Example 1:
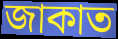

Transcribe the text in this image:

জাকাত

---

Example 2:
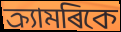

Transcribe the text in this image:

ক্ৰ্যামৰিকে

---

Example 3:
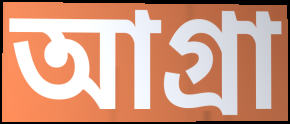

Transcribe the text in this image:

আগ্ৰা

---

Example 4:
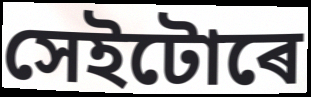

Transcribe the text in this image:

সেইটোৰে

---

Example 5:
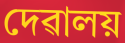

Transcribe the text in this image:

দেৱালয়